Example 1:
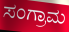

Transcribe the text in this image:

ಸಂಗ್ರಾಮ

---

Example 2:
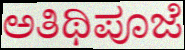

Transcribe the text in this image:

ಅತಿಥಿಪೂಜೆ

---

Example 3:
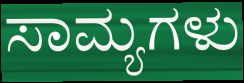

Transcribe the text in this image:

ಸಾಮ್ಯಗಳು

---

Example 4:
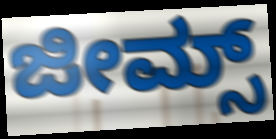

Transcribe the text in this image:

ಜೀಮ್ಸ್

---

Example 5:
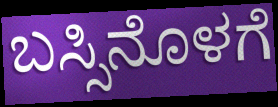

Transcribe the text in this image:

ಬಸ್ಸಿನೊಳಗೆ